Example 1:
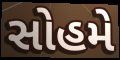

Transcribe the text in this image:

સોહમે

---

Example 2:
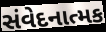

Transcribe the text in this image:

સંવેદનાત્મક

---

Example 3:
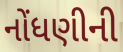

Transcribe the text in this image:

નોંધણીની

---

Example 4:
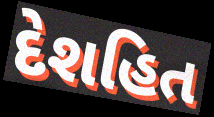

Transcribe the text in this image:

દેશહિત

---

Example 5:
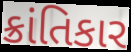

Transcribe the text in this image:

ક્રાંતિકાર